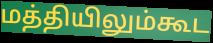
மத்தியிலும்கூட